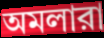
অমলারা